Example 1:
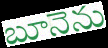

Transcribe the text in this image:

బూనెను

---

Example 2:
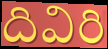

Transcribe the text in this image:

దివిరి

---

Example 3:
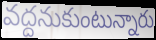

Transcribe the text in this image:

వద్దనుకుంటున్నారు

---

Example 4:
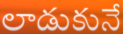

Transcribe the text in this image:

లాడుకునే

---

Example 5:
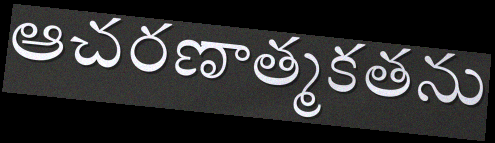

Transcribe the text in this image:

ఆచరణాత్మకతను